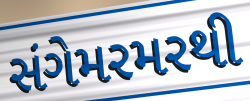
સંગેમરમરથી